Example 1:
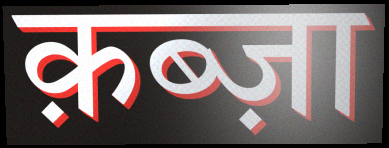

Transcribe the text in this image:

क़ब्ज़ा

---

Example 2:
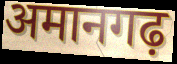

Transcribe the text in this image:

अमानगढ़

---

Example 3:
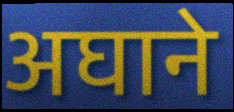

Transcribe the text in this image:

अघाने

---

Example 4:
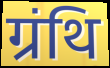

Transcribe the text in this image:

ग्रंथि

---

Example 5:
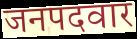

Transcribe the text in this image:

जनपदवार